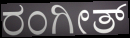
ರಂಗೀತ್